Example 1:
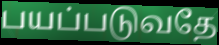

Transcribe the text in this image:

பயப்படுவதே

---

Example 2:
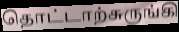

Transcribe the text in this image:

தொட்டாற்சுருங்கி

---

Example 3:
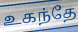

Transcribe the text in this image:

உகந்தே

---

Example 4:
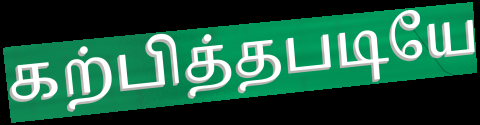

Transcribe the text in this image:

கற்பித்தபடியே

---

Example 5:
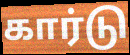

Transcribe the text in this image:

கார்டு